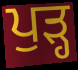
ਪੁੜ੍ਹ